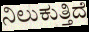
ನಿಲುಕುತ್ತಿದೆ